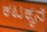
ಕಟಕ್ಕನೆ